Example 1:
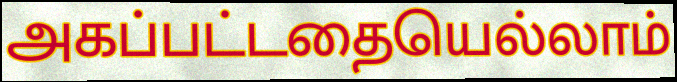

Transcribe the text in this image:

அகப்பட்டதையெல்லாம்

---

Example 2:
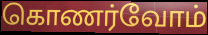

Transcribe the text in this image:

கொணர்வோம்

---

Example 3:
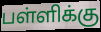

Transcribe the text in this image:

பள்ளிக்கு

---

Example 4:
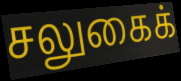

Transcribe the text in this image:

சலுகைக்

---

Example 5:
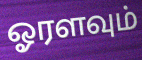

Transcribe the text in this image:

ஓரளவும்